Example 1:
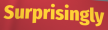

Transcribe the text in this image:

Surprisingly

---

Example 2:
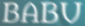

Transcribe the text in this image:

BABU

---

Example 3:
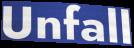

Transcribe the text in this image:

Unfall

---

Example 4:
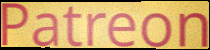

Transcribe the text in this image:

Patreon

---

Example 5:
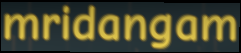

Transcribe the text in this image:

mridangam